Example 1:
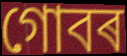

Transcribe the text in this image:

গোবৰ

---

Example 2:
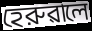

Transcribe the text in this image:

হেৰুৱালে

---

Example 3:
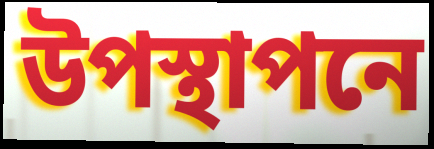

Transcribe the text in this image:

উপস্থাপনে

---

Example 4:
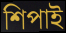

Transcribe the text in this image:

শিপাই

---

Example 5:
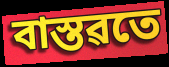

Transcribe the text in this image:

বাস্তৱতে